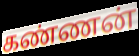
கண்ணன்